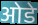
ओडे